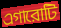
এগারোটি